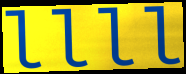
llll